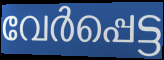
വേർപ്പെട്ട